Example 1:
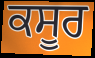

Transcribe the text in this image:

ਕਸੂਰ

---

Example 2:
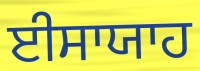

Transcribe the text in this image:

ਈਸਾਯਾਹ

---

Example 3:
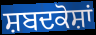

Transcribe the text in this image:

ਸ਼ਬਦਕੋਸ਼ਾਂ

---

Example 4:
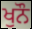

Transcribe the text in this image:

ਖੁਨੌ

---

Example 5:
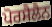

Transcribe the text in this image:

ਪੋਰਸੈਲੈਨ